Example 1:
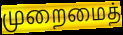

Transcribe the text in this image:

முறைமைத்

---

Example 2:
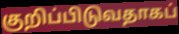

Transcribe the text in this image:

குறிப்பிடுவதாகப்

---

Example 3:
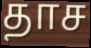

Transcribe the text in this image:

தாச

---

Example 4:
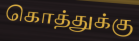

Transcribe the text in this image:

கொத்துக்கு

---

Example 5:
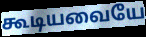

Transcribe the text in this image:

கூடியவையே